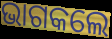
ଭାଗକଲେ